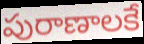
పురాణాలకే